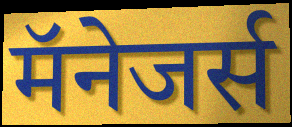
मॅनेजर्स